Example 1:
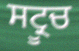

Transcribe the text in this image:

ਸਟ੍ਰੂਚ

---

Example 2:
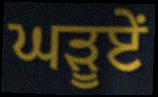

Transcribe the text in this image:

ਘੜੂਏਂ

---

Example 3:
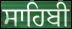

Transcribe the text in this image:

ਸਾਹਿਬੀ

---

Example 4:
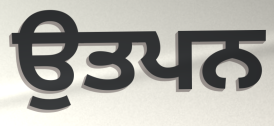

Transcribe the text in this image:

ਉਤਪਨ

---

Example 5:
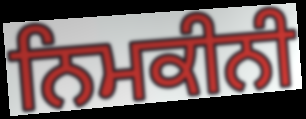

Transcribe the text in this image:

ਨਿਮਕੀਨੀ